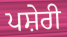
ਪਸ਼ੇਰੀ